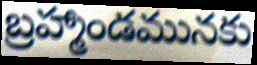
బ్రహ్మాండమునకు